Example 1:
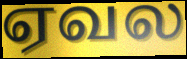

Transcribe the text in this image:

ஏவல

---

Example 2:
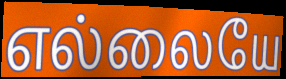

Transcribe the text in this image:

எல்லையே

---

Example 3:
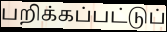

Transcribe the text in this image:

பறிக்கப்பட்டுப்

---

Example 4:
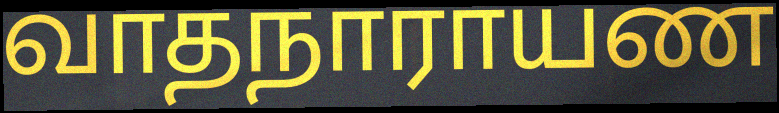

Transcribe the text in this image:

வாதநாராயண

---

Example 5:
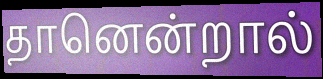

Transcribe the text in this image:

தானென்றால்